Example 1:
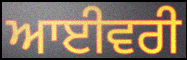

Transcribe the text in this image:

ਆਈਵਰੀ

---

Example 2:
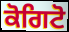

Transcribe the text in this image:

ਕੋਗਿਟੋ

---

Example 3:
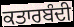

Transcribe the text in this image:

ਕਤਾਰਬੰਦੀ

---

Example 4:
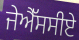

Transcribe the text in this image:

ਜੇਐੱਸਸੀਏ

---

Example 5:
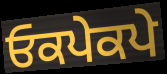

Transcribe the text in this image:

ਓਕਪੇਕਪੇ